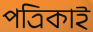
পত্রিকাই